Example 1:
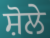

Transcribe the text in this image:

ਸ਼ੋਲੇ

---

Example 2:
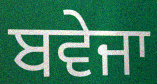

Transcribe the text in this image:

ਬਵੇਜਾ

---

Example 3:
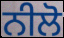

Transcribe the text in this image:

ਨੀਲੋ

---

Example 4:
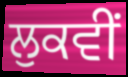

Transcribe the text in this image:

ਲੁਕਵੀਂ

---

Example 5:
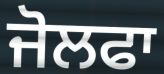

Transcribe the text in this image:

ਜੋਲਫਾ